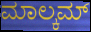
ಮಾಲ್ಕಮ್